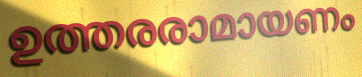
ഉത്തരരാമായണം